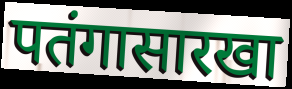
पतंगासारखा